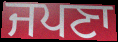
ਜਪਣਾ